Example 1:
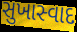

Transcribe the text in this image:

સુખાસ્વાદ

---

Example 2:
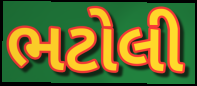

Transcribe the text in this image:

ભટોલી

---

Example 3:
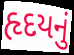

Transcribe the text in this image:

હૃદયનું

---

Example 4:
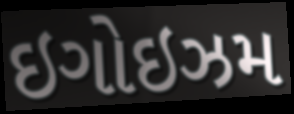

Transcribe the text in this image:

ઇગોઇઝમ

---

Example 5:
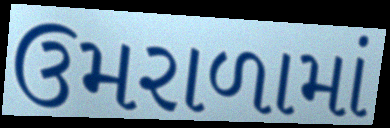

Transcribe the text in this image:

ઉમરાળામાં